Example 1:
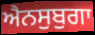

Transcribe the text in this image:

ਐਨਸੁਬੁਗਾ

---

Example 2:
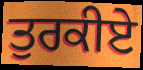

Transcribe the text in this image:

ਤੁਰਕੀਏ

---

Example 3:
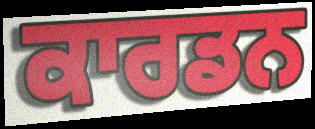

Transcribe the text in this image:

ਕਾਰਡਨ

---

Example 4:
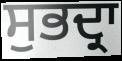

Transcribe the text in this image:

ਸੁਭਦ੍ਰਾ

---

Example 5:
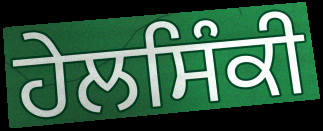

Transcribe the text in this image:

ਹੇਲਸਿੰਕੀ